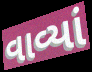
વાવ્યાં